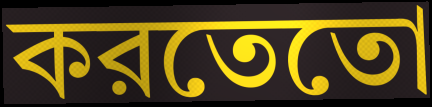
করতেতো